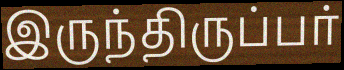
இருந்திருப்பர்